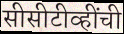
सीसीटीव्हींची